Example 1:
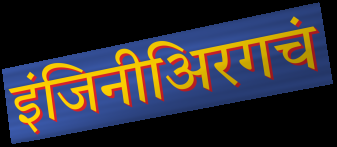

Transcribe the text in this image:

इंजिनीअिरगचं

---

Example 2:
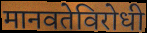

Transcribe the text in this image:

मानवतेविरोधी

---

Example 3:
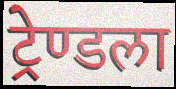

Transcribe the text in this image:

ट्रेण्डला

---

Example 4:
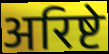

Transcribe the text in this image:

अरिष्टे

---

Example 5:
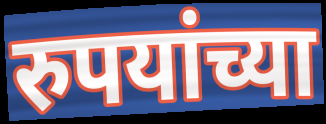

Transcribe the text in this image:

रुपयांच्या